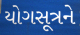
યોગસૂત્રને